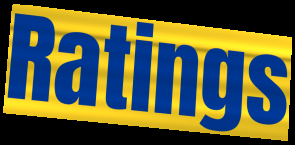
Ratings